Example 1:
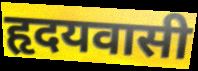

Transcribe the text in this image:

हृदयवासी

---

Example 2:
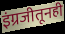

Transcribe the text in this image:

इंग्रजीतूनही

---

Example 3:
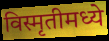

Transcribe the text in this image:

विस्मृतीमध्ये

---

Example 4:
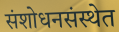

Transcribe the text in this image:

संशोधनसंस्थेत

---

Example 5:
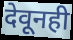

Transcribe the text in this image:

देवूनही